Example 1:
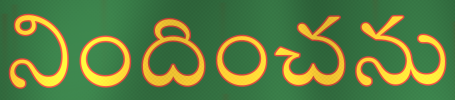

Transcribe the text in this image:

నిందించను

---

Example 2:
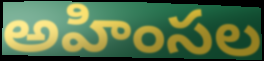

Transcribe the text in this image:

అహింసల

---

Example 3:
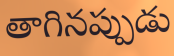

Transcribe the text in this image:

తాగినప్పుడు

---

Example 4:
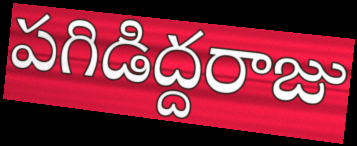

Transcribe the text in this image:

పగిడిద్దరాజు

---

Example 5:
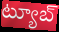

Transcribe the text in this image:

ట్యూబ్